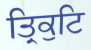
ਤ੍ਰਿਕੁਟਿ